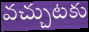
వచ్చుటకు